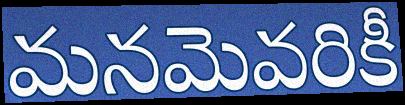
మనమెవరికీ